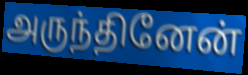
அருந்தினேன்